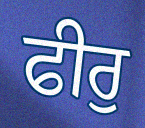
ਫੀਰੁ